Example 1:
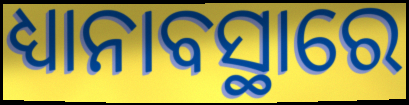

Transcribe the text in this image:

ଧ୍ୟାନାବସ୍ଥାରେ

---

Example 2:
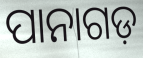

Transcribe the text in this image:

ପାନାଗଡ଼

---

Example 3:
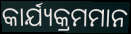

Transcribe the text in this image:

କାର୍ଯ୍ୟକ୍ରମମାନ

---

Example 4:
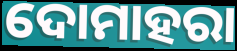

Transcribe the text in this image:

ଦୋମାହରା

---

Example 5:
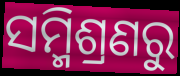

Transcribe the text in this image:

ସମ୍ମିଶ୍ରଣରୁ